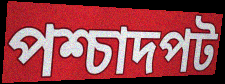
পশ্চাদপট